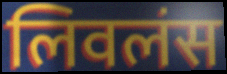
लिवलंस